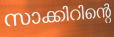
സാക്കിറിന്റെ